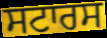
ਸਟਾਰਸ